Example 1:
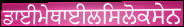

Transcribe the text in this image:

ਡਾਈਮੇਥਾਈਲਸਿਲੋਕਸੇਨ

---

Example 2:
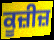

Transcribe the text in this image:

ਕੂਜ਼ੀਜ਼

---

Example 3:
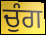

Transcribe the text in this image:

ਚੁੰਗ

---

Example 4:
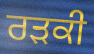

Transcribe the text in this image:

ਰੜਕੀ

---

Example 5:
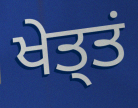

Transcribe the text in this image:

ਖੇਤ੍ਤਂ